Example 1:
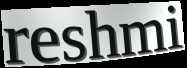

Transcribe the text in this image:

reshmi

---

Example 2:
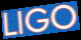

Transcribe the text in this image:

LIGO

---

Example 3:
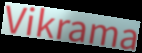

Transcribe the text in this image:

Vikrama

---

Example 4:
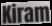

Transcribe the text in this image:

Kiram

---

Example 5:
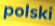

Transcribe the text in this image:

polski